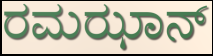
ರಮಝಾನ್